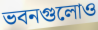
ভবনগুলোও